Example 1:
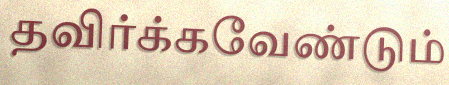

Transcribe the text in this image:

தவிர்க்கவேண்டும்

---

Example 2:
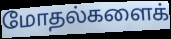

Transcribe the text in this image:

மோதல்களைக்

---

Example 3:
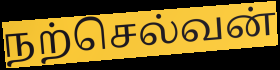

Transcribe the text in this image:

நற்செல்வன்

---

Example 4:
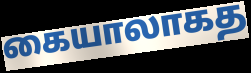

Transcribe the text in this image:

கையாலாகத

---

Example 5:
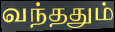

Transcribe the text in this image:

வந்ததும்